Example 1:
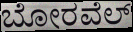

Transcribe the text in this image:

ಬೋರವೆಲ್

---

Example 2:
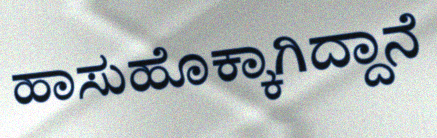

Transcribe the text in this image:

ಹಾಸುಹೊಕ್ಕಾಗಿದ್ದಾನೆ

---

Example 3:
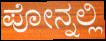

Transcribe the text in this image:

ಪೋನ್ನಲ್ಲಿ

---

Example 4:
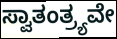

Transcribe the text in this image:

ಸ್ವಾತಂತ್ರ್ಯವೇ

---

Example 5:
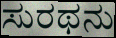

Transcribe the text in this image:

ಸುರಥನು